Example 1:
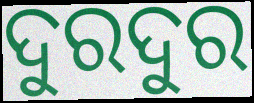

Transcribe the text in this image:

ଦୁରଦୁର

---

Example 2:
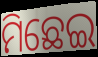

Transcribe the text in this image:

ମିଛେଇ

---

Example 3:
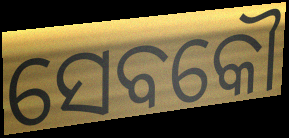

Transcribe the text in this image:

ସେବକୌ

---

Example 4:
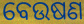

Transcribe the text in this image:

ବେଉଷଣ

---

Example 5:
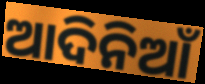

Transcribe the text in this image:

ଆଦିନିଆଁ